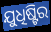
ଯୁଧିଷ୍ଟିର